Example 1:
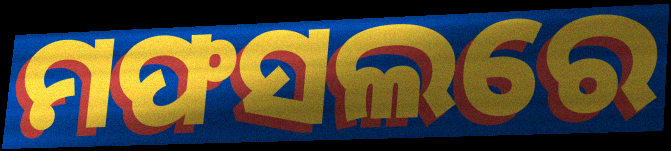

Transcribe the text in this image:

ମଫସଲରେ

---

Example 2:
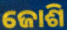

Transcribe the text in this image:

ଜୋଶି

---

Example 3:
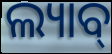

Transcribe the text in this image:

ଲ୍ୟାବ୍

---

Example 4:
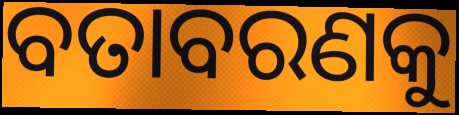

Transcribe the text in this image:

ବତାବରଣକୁ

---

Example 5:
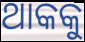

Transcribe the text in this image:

ଥାକକୁ